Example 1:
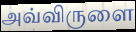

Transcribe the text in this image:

அவ்விருளை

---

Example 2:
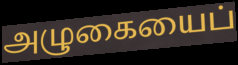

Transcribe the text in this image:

அழுகையைப்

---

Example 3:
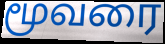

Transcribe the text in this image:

மூவரை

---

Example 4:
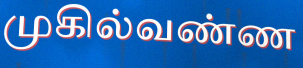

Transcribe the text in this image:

முகில்வண்ண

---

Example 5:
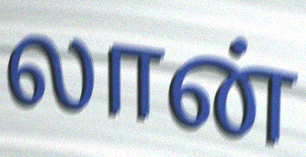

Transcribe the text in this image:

லான்